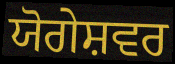
ਯੋਗੇਸ਼ਵਰ